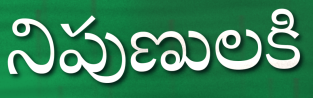
నిపుణులకి